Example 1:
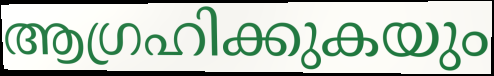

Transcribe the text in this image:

ആഗ്രഹിക്കുകയും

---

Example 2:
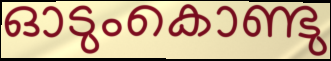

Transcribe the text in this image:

ഓടുംകൊണ്ടു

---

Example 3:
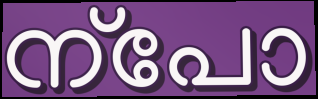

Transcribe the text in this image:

ന്പോ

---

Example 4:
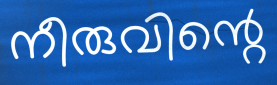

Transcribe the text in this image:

നീരുവിന്റെ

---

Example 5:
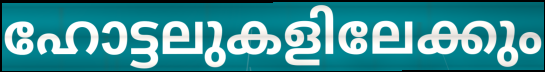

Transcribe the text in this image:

ഹോട്ടലുകളിലേക്കും